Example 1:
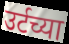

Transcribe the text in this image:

उर्टच्या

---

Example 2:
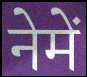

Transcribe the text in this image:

नेमें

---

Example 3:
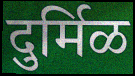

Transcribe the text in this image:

दुर्मिळ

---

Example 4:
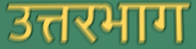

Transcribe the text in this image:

उत्तरभाग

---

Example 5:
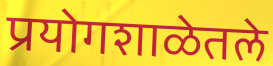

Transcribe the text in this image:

प्रयोगशाळेतले